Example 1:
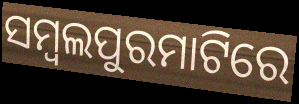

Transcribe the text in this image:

ସମ୍ବଲପୁରମାଟିରେ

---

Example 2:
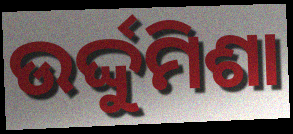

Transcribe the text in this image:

ଉର୍ଦ୍ଦୁମିଶା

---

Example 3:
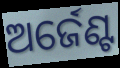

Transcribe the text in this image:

ଅର୍ଜେଣ୍ଟ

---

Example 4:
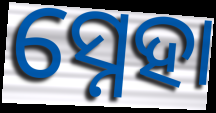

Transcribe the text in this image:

ସ୍ନେହା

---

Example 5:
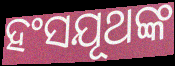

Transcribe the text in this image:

ହଂସଯୂଥଙ୍କ